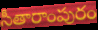
సీతారాంపురం